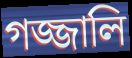
গজ্জালি